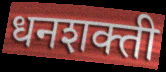
धनशक्ती